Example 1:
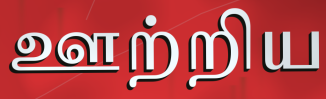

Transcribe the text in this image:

ஊற்றிய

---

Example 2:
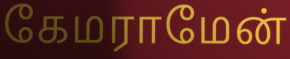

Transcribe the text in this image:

கேமராமேன்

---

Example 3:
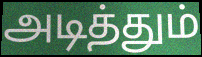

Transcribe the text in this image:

அடித்தும்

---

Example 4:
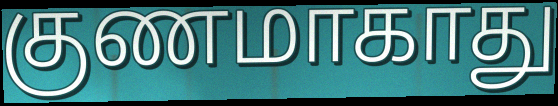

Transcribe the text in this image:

குணமாகாது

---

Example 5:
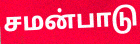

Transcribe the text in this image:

சமன்பாடு